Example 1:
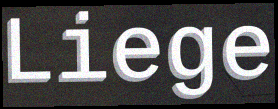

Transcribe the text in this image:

Liege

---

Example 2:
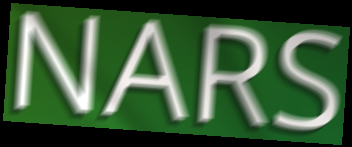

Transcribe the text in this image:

NARS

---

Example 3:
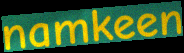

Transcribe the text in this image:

namkeen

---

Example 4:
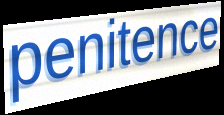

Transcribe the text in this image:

penitence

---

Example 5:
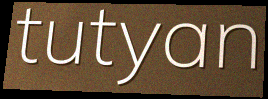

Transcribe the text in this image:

tutyan